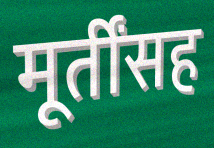
मूर्तींसह